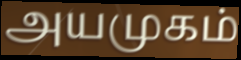
அயமுகம்